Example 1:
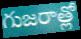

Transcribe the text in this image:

గుజరాత్లో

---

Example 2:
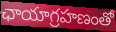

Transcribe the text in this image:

ఛాయాగ్రహణంతో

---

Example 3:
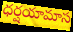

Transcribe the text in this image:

ధర్షయామాస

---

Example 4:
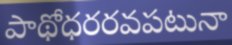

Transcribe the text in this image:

పాథోధరరవపటునా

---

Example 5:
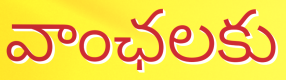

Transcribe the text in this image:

వాంఛలకు